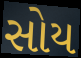
સોય